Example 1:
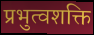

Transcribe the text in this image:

प्रभुत्वशक्ति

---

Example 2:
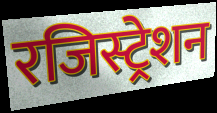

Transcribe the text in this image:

रजिस्ट्रेशन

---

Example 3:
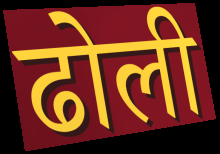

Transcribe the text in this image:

ढोली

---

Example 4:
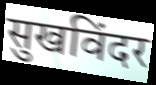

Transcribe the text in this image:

सुखविंदर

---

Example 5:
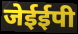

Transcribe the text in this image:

जेईईपी